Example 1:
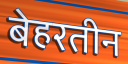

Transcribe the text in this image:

बेहरतीन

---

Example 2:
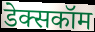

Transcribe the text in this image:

डेक्सकॉम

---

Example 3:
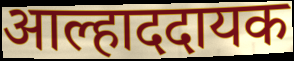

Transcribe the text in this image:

आल्हाददायक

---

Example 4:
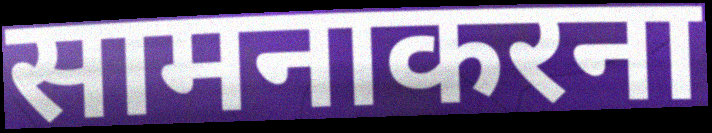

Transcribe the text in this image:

सामनाकरना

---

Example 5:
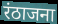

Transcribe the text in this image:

रंठाजना